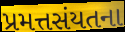
પ્રમત્તસંયતના